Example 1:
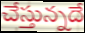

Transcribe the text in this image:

చేస్తున్నదే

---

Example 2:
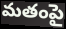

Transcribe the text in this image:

మతంపై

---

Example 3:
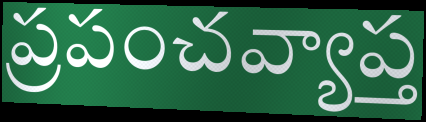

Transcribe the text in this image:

ప్రపంచవ్యాప్త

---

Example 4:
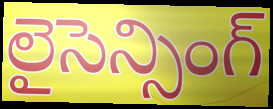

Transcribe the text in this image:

లైసెన్సింగ్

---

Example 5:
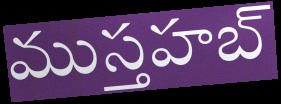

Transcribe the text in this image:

ముస్తహబ్